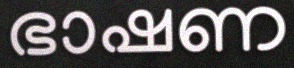
ഭാഷണ